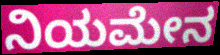
ನಿಯಮೇನ